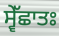
ਸ੍ਵੇੱਛਾਤਃ